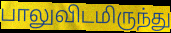
பாலுவிடமிருந்து